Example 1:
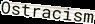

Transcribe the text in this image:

Ostracism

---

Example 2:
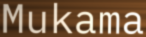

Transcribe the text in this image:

Mukama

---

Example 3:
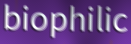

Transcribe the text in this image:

biophilic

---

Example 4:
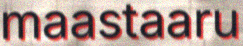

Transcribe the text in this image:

maastaaru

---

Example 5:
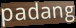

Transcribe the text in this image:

padang